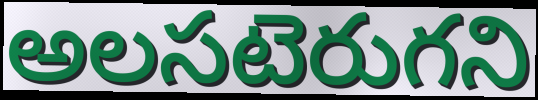
అలసటెరుగని